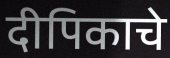
दीपिकाचे